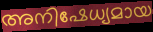
അനിഷേധ്യമായ